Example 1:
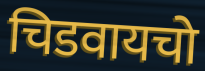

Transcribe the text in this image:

चिडवायचो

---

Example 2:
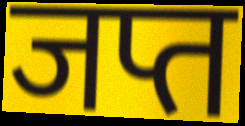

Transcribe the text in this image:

जप्त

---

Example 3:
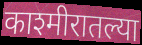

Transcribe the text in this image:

काश्मीरातल्या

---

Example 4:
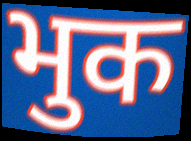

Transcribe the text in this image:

भुक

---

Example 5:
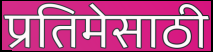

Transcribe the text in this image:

प्रतिमेसाठी